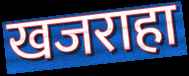
खजराहा